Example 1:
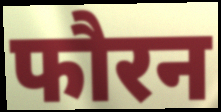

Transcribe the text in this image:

फौरन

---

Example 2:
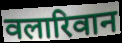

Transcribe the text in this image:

वलारिवान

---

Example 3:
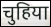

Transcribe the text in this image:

चुहिया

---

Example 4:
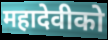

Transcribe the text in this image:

महादेवीको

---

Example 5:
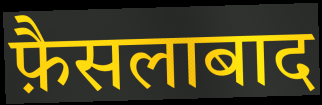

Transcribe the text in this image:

फ़ैसलाबाद